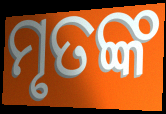
ମୃତଙ୍କ